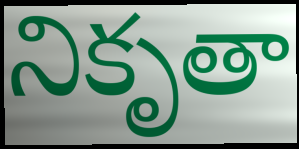
నికృతా